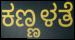
ಕಣ್ಣಳತೆ